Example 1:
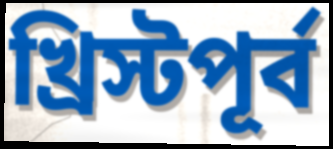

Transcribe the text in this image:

খ্রিস্টপূর্ব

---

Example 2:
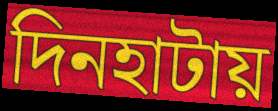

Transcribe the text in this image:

দিনহাটায়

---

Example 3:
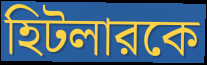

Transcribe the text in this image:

হিটলারকে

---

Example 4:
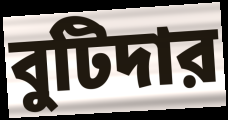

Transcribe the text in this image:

বুটিদার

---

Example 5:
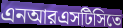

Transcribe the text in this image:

এনআরএসটিসিতে